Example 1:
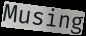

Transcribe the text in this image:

Musing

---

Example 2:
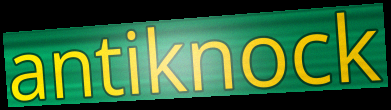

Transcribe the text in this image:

antiknock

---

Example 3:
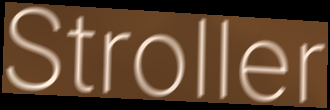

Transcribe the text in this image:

Stroller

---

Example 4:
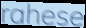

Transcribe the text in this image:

rahese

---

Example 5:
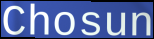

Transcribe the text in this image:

Chosun